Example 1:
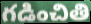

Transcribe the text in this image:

గడించితి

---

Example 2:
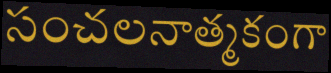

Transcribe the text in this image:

సంచలనాత్మకంగా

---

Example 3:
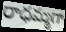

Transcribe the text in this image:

రాధమ్మగా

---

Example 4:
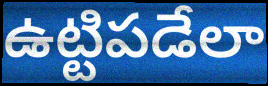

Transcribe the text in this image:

ఉట్టిపడేలా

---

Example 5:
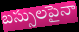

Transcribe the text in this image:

బస్సులపైనా